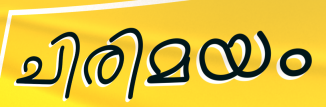
ചിരിമയം